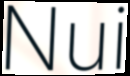
Nui